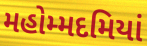
મહોમ્મદમિયાં